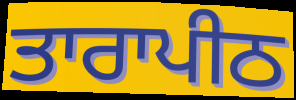
ਤਾਰਾਪੀਠ